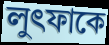
লুৎফাকে